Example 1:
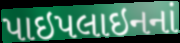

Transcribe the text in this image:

પાઇપલાઇનનાં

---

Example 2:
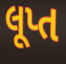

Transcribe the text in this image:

લૂપ્ત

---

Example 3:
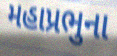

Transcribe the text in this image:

મહાપ્રભુના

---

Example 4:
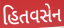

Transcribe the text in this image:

હિતવસેન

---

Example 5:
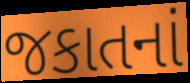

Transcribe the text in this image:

જકાતનાં